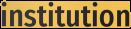
institution